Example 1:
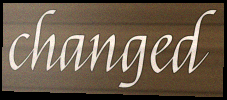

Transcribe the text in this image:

changed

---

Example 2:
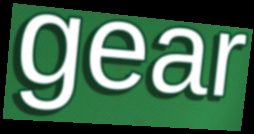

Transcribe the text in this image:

gear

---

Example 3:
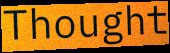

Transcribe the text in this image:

Thought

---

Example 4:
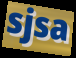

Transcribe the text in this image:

sjsa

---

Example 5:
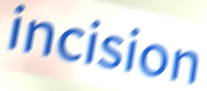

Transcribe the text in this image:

incision